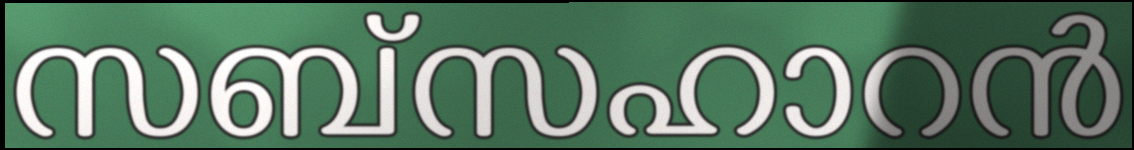
സബ്സഹാറൻ